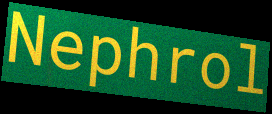
Nephrol